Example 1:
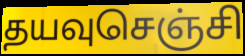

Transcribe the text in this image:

தயவுசெஞ்சி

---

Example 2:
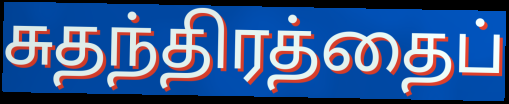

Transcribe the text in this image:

சுதந்திரத்தைப்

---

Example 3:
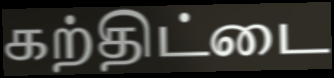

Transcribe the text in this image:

கற்திட்டை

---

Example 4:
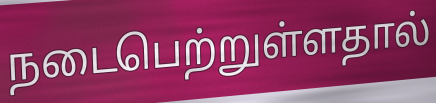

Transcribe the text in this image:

நடைபெற்றுள்ளதால்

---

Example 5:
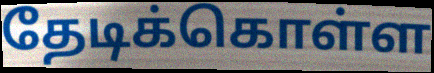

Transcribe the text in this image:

தேடிக்கொள்ள